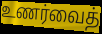
உணர்வைத்